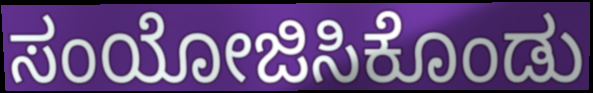
ಸಂಯೋಜಿಸಿಕೊಂಡು